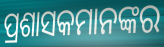
ପ୍ରଶାସକମାନଙ୍କର